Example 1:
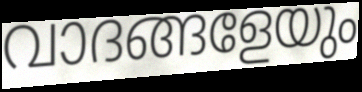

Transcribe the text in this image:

വാദങ്ങളേയും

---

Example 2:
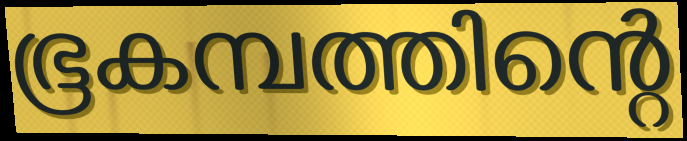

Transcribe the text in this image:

ഭൂകമ്പത്തിന്റെ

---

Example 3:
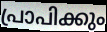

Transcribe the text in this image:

പ്രാപിക്കും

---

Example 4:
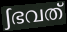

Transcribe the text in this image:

ഽഭവത്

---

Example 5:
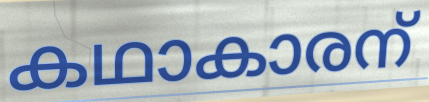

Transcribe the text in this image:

കഥാകാരന്